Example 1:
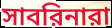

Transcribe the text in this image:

সাবরিনারা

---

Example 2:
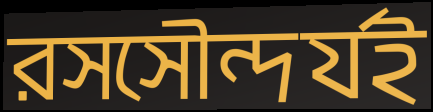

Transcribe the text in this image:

রসসৌন্দর্যই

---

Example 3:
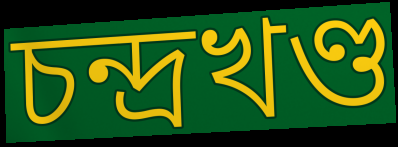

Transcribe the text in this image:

চন্দ্রখণ্ড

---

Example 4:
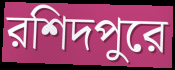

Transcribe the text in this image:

রশিদপুরে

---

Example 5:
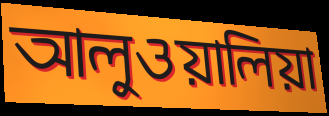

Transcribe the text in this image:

আলুওয়ালিয়া